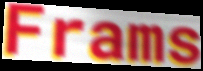
Frams